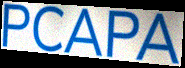
PCAPA